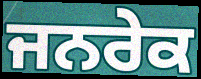
ਜਨਰੇਕ